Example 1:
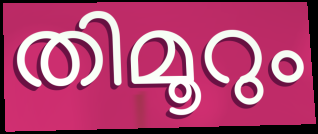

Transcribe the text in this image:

തിമൂറും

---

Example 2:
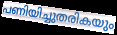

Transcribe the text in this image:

പണിയിച്ചുതരികയും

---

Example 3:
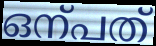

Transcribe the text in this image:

ഒന്പത്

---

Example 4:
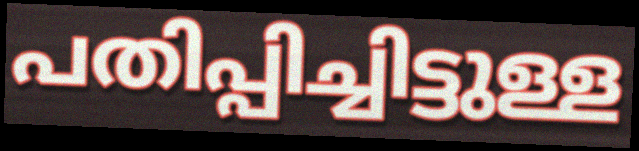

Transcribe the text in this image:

പതിപ്പിച്ചിട്ടുള്ള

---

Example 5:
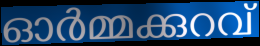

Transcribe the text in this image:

ഓർമ്മക്കുറവ്